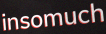
insomuch